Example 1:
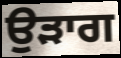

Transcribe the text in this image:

ਉੜਾਗ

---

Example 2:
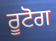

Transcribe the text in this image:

ਰੂਟੋਗ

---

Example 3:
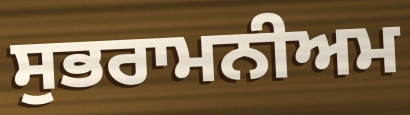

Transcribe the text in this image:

ਸੁਭਰਾਮਨੀਅਮ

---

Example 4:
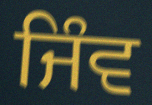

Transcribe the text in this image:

ਜਿੰਵ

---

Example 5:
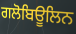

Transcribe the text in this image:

ਗਲੋਬਿਊਲਿਨ